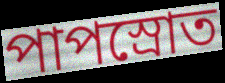
পাপস্রোত